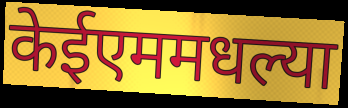
केईएममधल्या